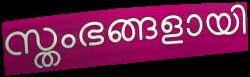
സ്തംഭങ്ങളായി